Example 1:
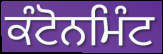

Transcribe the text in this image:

ਕੰਟੋਨਮਿੰਟ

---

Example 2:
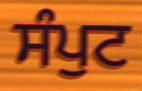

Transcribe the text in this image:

ਸੰਪੁਟ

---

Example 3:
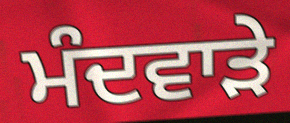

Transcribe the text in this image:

ਮੰਦਵਾੜੇ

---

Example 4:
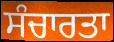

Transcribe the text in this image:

ਸੰਚਾਰਤਾ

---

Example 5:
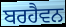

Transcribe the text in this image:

ਬਰਹੈਵਨ